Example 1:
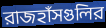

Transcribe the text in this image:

রাজহাঁসগুলির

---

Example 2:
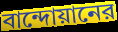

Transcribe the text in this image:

বান্দোয়ানের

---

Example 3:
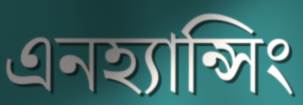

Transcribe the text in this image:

এনহ্যান্সিং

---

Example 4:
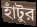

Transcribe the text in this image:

হাঁটুর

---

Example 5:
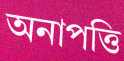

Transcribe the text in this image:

অনাপত্তি